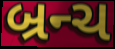
બ્રન્ચ